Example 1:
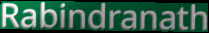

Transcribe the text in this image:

Rabindranath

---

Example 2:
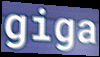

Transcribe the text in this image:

giga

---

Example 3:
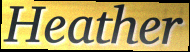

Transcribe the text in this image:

Heather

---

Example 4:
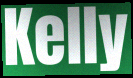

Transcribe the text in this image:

Kelly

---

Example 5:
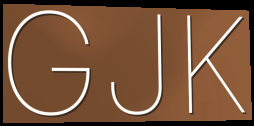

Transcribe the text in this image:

GJK